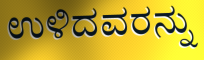
ಉಳಿದವರನ್ನು